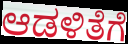
ಆಡಳಿತೆಗೆ